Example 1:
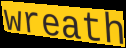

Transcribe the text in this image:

wreath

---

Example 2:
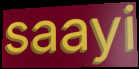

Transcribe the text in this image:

saayi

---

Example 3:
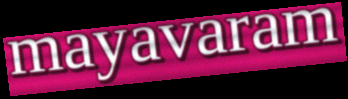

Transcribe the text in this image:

mayavaram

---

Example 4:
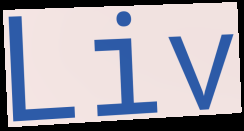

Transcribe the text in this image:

Liv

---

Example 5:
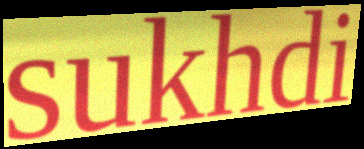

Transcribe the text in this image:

sukhdi